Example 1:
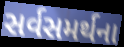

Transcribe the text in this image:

સર્વસમર્થના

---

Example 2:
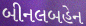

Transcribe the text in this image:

બીનલબહેન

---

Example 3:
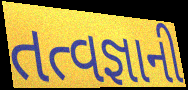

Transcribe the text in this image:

તત્વજ્ઞાની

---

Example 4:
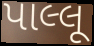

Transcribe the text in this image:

પાલ્લૂ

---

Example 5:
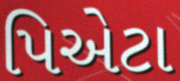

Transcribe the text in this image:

પિએટા